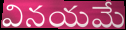
వినయమే